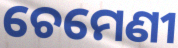
ଚେମେଣୀ